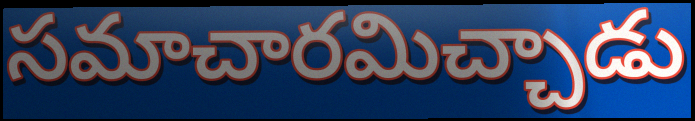
సమాచారమిచ్చాడు